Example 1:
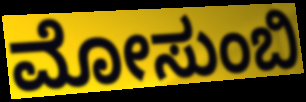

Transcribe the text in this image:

ಮೋಸುಂಬಿ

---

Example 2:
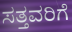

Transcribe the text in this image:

ಸತ್ತವರಿಗೆ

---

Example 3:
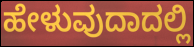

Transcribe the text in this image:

ಹೇಳುವುದಾದಲ್ಲಿ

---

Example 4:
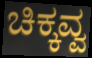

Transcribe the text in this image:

ಚಿಕ್ಕವ್ವ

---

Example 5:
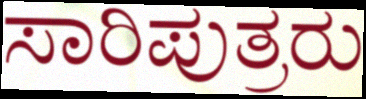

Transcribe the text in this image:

ಸಾರಿಪುತ್ರರು